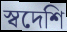
স্বদেশি